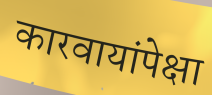
कारवायांपेक्षा